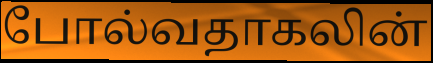
போல்வதாகலின்